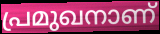
പ്രമുഖനാണ്